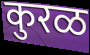
कुरळ